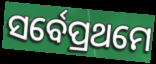
ସର୍ବେପ୍ରଥମେ